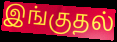
இங்குதல்